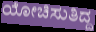
ಯೋಚಿಸುತಿದ್ದ